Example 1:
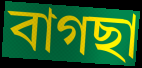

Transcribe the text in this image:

বাগছা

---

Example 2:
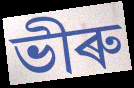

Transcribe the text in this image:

ভীৰু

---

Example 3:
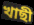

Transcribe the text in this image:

খাছী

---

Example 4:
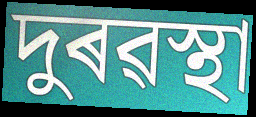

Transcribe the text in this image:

দুৰৱস্থা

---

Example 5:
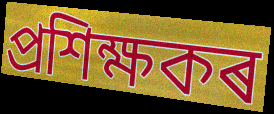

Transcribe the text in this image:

প্ৰশিক্ষকৰ